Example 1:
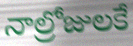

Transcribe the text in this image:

నాల్రోజులకే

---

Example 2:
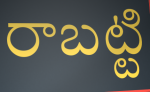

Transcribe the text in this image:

రాబట్టి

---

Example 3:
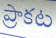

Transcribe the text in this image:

ప్రాకట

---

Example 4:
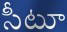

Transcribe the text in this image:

సీటూ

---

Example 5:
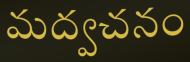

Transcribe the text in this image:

మద్వచనం